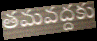
తమవద్దకు